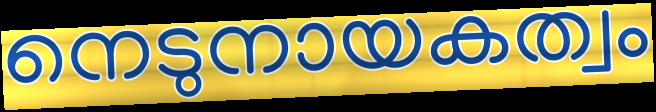
നെടുനായകത്വം